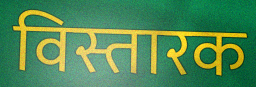
विस्तारक